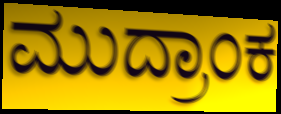
ಮುದ್ರಾಂಕ